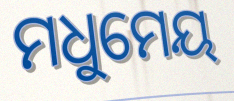
ମଧୁମେୟ